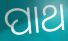
ପାଥ